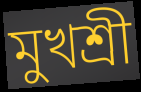
মুখশ্রী